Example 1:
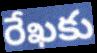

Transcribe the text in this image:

రేఖకు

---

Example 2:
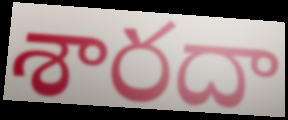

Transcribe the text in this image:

శారదా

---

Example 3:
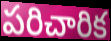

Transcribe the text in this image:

పరిచారిక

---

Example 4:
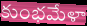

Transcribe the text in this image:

కుంభమేళా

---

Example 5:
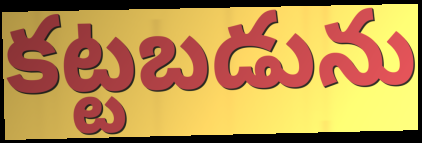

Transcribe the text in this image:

కట్టబడును